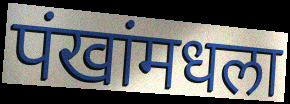
पंखांमधला